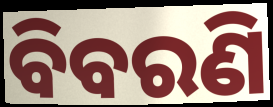
ବିବରଣି